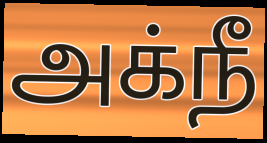
அக்நீ